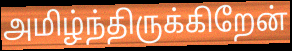
அமிழ்ந்திருக்கிறேன்